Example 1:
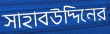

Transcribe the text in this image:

সাহাবউদ্দিনের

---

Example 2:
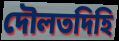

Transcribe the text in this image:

দৌলতদিহি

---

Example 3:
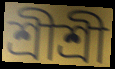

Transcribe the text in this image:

শ্রীশ্রী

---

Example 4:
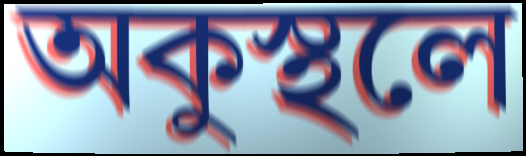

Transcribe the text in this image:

অকুস্থলে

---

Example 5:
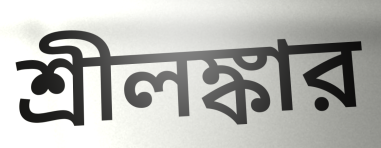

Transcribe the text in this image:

শ্রীলঙ্কার